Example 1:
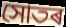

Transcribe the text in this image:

সোতৰ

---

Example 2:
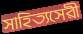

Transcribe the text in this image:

সাহিত্যসেৱী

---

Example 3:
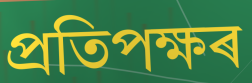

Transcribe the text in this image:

প্ৰতিপক্ষৰ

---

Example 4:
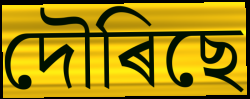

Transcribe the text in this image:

দৌৰিছে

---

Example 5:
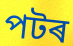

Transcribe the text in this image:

পটৰ